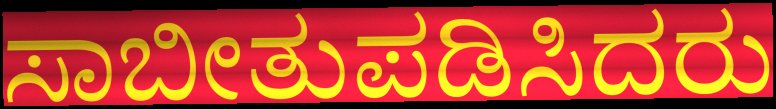
ಸಾಬೀತುಪಡಿಸಿದರು